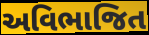
અવિભાજિત